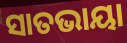
ସାତଭାୟା